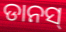
ଡାନସ୍